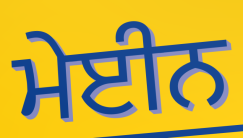
ਮੇਈਨ